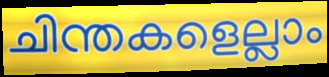
ചിന്തകളെല്ലാം